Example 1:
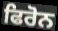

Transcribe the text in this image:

ਫਿਰੋਨ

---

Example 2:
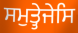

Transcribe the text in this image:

ਸਮੁਤ੍ਤੇਜੇਸਿ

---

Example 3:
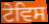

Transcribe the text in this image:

ਟੇਵਿਸ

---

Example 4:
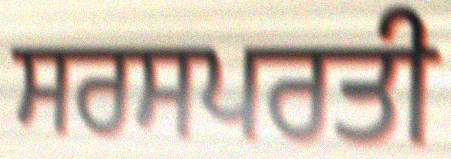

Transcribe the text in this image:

ਸਰਸਪਰਤੀ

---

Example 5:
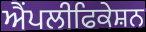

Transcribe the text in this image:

ਐਂਪਲੀਫਿਕੇਸ਼ਨ